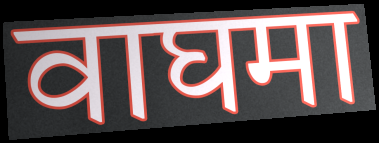
वाघमा